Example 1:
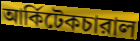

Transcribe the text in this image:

আর্কিটেকচারাল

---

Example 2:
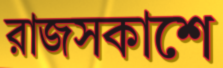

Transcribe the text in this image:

রাজসকাশে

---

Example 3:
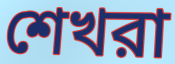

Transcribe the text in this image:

শেখরা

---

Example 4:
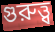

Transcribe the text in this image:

গুরুত্ত্ব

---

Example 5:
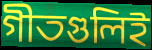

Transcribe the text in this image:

গীতগুলিই